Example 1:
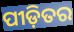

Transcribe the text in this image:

ପୀଡ଼ିତର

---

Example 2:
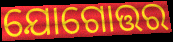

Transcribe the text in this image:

ଯୋଗୋତ୍ତର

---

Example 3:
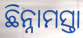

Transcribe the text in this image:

ଛିନ୍ନାମସ୍ତା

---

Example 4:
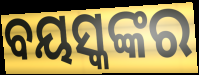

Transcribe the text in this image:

ବୟସ୍କଙ୍କର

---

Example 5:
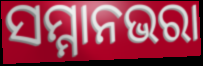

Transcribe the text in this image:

ସମ୍ମାନଭରା